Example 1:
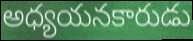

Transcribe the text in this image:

అధ్యయనకారుడు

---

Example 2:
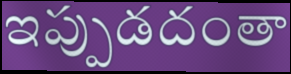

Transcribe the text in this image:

ఇప్పుడదంతా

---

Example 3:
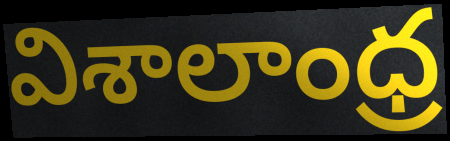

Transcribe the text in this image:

విశాలాంధ్ర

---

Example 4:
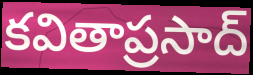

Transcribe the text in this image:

కవితాప్రసాద్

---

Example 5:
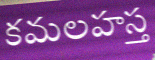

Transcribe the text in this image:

కమలహస్త